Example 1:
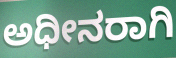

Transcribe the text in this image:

ಅಧೀನರಾಗಿ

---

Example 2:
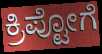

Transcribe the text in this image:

ಕ್ರಿಪ್ಟೋಗೆ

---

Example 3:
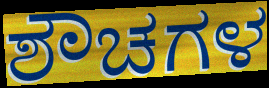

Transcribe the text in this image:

ಶೌಚಗಳ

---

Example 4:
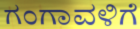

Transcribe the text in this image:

ಗಂಗಾವಳಿಗೆ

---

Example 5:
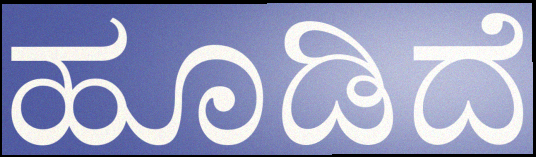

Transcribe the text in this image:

ಹೂಡಿದೆ